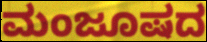
ಮಂಜೂಷದ